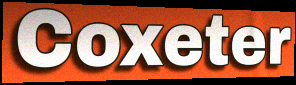
Coxeter